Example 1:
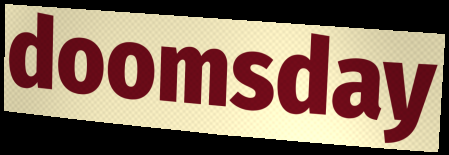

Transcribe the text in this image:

doomsday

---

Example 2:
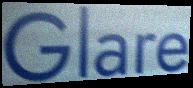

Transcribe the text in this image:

Glare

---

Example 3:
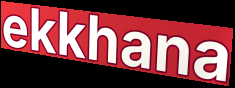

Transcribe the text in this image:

ekkhana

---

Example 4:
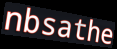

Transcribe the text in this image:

nbsathe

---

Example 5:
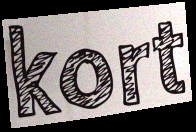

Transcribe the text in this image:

kort